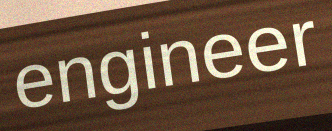
engineer